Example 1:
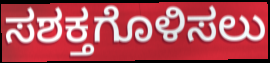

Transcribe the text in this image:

ಸಶಕ್ತಗೊಳಿಸಲು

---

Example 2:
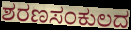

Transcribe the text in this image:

ಶರಣಸಂಕುಲದ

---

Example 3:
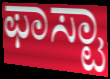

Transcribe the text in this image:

ಫಾಸ್ಟಾ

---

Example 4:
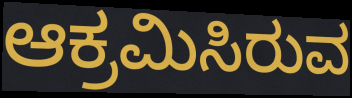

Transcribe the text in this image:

ಆಕ್ರಮಿಸಿರುವ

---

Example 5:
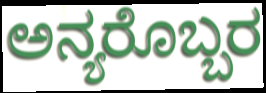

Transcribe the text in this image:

ಅನ್ಯರೊಬ್ಬರ